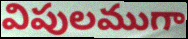
విపులముగా